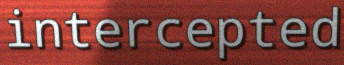
intercepted